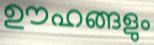
ഊഹങ്ങളും